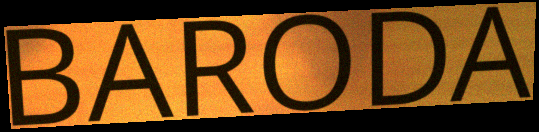
BARODA